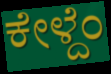
ಕೇಳ್ದೆಂ